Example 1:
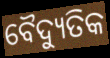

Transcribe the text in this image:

ବୈଦ୍ୟୁତିକ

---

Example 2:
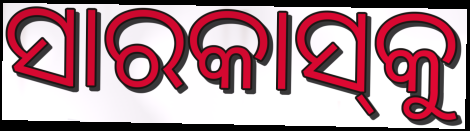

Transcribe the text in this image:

ସାରକାସ୍‌କୁ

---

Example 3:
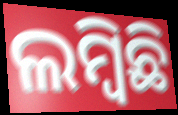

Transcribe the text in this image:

ଲମ୍ବିଛି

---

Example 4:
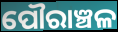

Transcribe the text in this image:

ପୌରାଞ୍ଚଳ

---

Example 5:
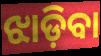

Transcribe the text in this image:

ଝାଡ଼ିବା